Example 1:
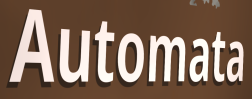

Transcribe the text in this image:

Automata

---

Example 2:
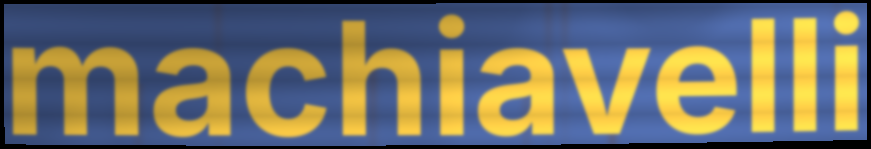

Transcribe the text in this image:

machiavelli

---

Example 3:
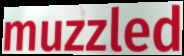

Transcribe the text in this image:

muzzled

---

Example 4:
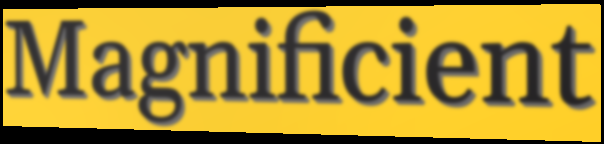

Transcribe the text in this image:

Magnificient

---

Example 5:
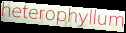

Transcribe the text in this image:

heterophyllum